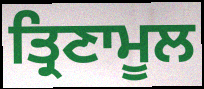
ਤ੍ਰਿਣਾਮੂਲ